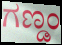
ಗಣ್ಡಂ